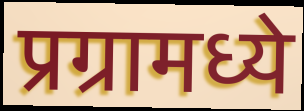
प्रग्रामध्ये